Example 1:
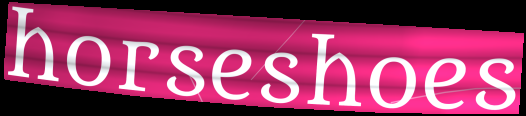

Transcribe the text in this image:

horseshoes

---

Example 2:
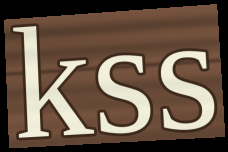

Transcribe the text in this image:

kss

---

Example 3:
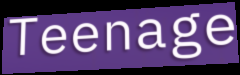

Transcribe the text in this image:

Teenage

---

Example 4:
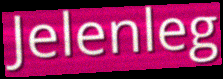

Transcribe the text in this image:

Jelenleg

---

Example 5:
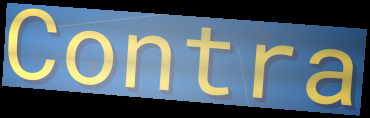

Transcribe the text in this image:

Contra